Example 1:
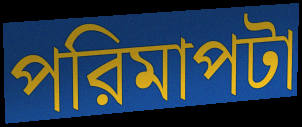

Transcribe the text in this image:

পরিমাপটা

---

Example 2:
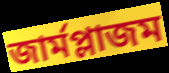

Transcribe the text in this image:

জার্মপ্লাজম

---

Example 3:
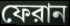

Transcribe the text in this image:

ফেরান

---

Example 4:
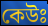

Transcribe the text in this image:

কেউঃ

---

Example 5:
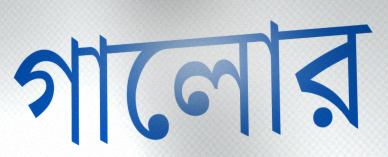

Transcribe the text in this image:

গালোর